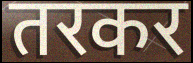
तरकर